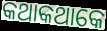
କଥାକଥାକେ